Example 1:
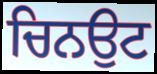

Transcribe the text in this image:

ਚਿਨਉਟ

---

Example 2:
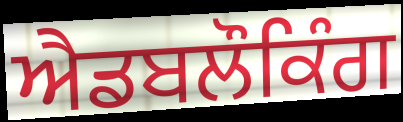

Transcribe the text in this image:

ਐਡਬਲੌਕਿੰਗ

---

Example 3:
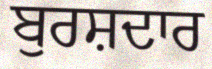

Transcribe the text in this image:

ਬੁਰਸ਼ਦਾਰ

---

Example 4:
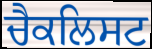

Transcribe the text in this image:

ਚੈਕਲਿਸਟ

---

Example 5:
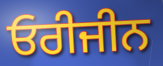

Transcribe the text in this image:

ਓਰੀਜੀਨ